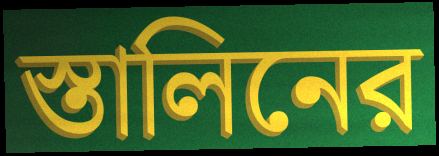
স্তালিনের